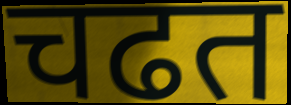
चढत